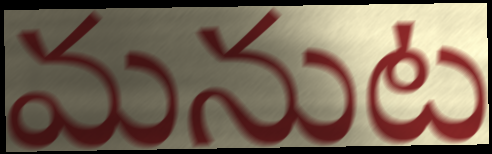
మనుట